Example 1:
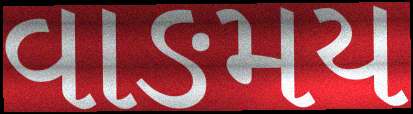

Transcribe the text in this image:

વાઙમય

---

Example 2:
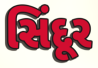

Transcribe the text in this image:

સિંદૂર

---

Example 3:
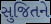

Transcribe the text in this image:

સુજિતને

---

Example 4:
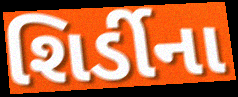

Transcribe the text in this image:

શિર્ડીના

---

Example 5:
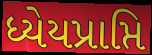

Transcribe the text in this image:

ધ્યેયપ્રાપ્તિ